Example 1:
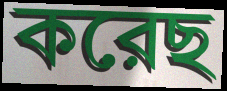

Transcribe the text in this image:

করেছ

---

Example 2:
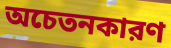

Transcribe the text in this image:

অচেতনকারণ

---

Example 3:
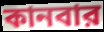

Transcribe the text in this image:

কানবার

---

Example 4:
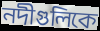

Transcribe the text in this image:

নদীগুলিকে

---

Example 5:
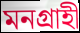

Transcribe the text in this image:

মনগ্রাহী